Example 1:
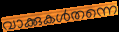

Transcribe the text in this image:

വാക്കുകൾതന്നെ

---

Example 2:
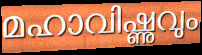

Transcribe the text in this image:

മഹാവിഷ്ണുവും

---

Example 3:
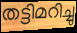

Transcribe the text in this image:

തട്ടിമറിച്ചു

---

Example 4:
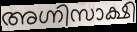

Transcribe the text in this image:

അഗ്നിസാക്ഷി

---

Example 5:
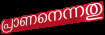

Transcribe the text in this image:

പ്രാണനെന്നതു